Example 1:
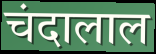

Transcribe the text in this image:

चंदालाल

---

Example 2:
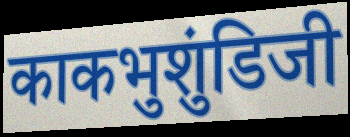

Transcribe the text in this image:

काकभुशुंडिजी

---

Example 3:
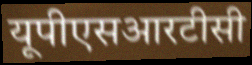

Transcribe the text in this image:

यूपीएसआरटीसी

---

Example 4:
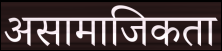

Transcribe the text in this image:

असामाजिकता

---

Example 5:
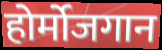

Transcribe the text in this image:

होर्मोजगान